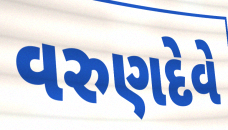
વરુણદેવે